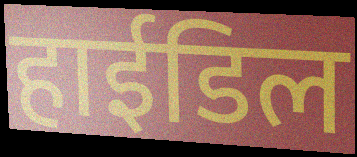
हाईडिल